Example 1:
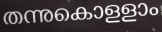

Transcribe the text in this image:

തന്നുകൊളളാം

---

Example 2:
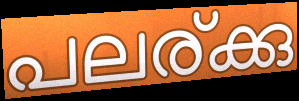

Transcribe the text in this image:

പലര്ക്കു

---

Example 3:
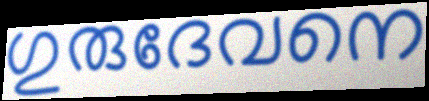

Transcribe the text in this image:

ഗുരുദേവനെ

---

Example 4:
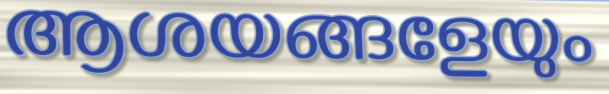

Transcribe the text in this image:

ആശയങ്ങളേയും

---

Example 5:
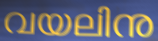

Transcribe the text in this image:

വയലിനു